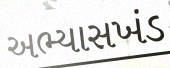
અભ્યાસખંડ